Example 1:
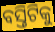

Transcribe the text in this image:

ବସ୍ତିଟିକୁ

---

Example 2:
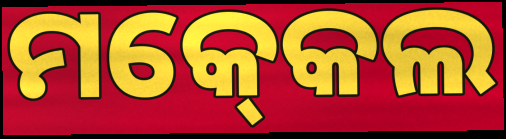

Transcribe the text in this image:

ମକ୍‍କେଲ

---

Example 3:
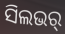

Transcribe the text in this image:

ସିଲଭର୍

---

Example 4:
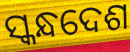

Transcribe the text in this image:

ସ୍କନ୍ଧଦେଶ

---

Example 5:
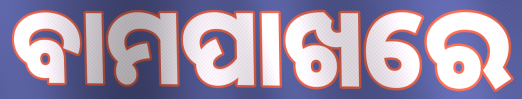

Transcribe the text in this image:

ବାମପାଖରେ